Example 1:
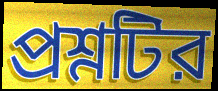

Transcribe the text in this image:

প্রশ্নটির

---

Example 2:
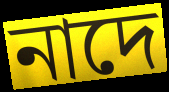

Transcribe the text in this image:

নাদে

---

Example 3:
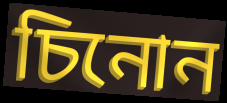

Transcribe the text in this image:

চিনোন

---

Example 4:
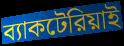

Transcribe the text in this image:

ব্যাকটেরিয়াই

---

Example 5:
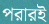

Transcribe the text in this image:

পরারই